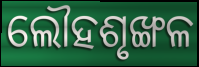
ଲୌହଶୃଙ୍ଖଳ